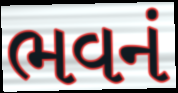
ભવનં